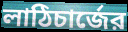
লাঠিচার্জের